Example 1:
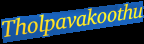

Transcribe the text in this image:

Tholpavakoothu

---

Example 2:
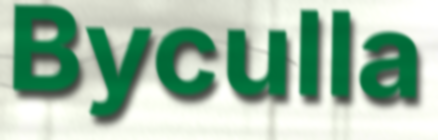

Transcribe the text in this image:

Byculla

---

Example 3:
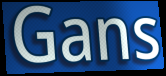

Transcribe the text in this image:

Gans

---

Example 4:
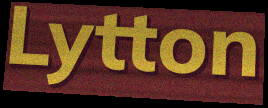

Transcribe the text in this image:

Lytton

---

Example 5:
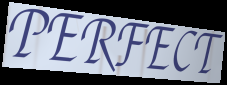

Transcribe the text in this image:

PERFECT